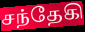
சந்தேகி